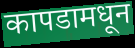
कापडामधून